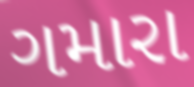
ગમારા